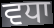
ਵਧਾ